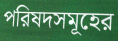
পরিষদসমূহের